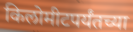
किलोमीटपर्यंतच्या